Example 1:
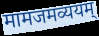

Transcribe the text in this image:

मामजमव्ययम्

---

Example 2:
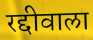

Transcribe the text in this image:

रद्दीवाला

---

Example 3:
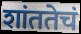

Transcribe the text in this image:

शांततेचं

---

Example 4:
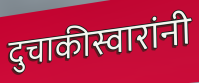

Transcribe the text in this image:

दुचाकीस्वारांनी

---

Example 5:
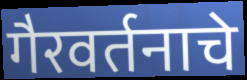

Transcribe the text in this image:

गैरवर्तनाचे